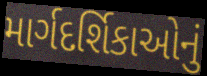
માર્ગદર્શિકાઓનું